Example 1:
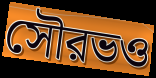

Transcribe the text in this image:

সৌরভও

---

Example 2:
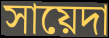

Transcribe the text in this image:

সায়েদা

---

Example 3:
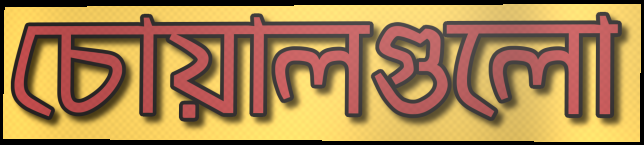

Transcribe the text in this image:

চোয়ালগুলো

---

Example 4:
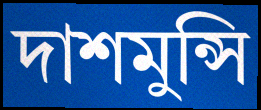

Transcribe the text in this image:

দাশমুন্সি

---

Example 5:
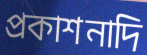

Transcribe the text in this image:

প্রকাশনাদি